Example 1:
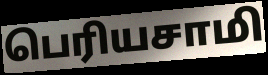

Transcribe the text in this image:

பெரியசாமி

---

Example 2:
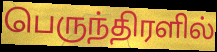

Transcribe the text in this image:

பெருந்திரளில்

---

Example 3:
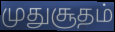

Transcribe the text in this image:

முதுசூதம்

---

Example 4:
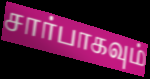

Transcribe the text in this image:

சார்பாகவும்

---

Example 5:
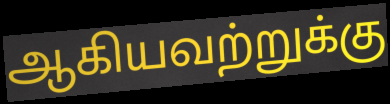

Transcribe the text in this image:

ஆகியவற்றுக்கு